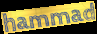
hammad